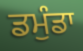
ਡਮੁੰਡਾ